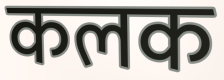
कलक